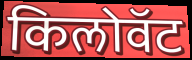
किलोवॅट